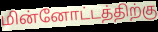
மின்னோட்டத்திற்கு